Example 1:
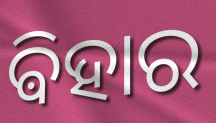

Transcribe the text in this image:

ଵିହାର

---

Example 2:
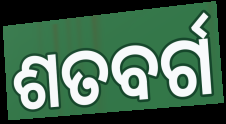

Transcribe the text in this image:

ଶତବର୍ଗ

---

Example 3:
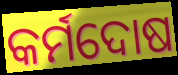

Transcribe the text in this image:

କର୍ମଦୋଷ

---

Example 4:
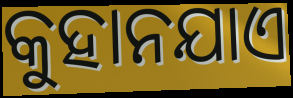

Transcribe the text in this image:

କୁହାନଯାଏ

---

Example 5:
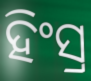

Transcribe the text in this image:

ହିଂସ୍ର